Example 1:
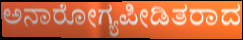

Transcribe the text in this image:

ಅನಾರೋಗ್ಯಪೀಡಿತರಾದ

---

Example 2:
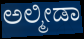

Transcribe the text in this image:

ಅಲ್ಮೀಡಾ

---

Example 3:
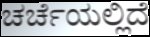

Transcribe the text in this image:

ಚರ್ಚೆಯಲ್ಲಿದೆ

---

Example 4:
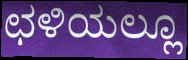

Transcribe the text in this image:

ಛಳಿಯಲ್ಲೂ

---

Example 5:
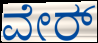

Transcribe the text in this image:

ವೇರ್‍